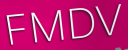
FMDV